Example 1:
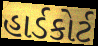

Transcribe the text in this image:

હાર્ડકોર્ટ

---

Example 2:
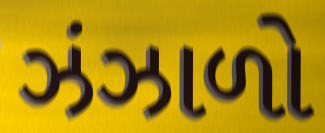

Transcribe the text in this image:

ઝંઝાળો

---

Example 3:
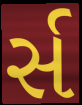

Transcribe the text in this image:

ર્સ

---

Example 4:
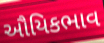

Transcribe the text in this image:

ઔયિકભાવ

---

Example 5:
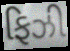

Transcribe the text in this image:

ફિઝી